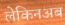
लेकिनअब